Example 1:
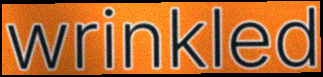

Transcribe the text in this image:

wrinkled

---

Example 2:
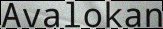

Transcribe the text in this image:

Avalokan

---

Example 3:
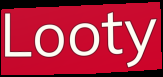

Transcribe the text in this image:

Looty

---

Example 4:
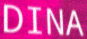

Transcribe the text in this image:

DINA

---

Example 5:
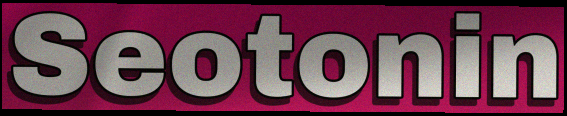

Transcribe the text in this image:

Seotonin